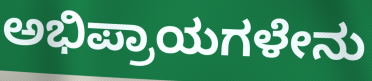
ಅಭಿಪ್ರಾಯಗಳೇನು